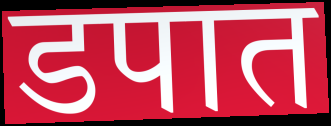
डपात